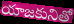
యాజకునితో